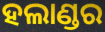
ହଲାଣ୍ଡର